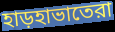
হাড়হাভাতেরা